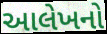
આલેખનો